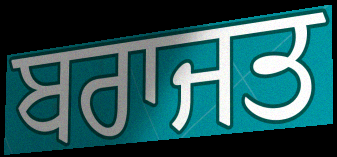
ਬਰਾਜਤ